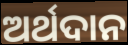
ଅର୍ଥଦାନ